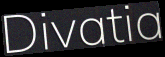
Divatia